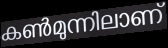
കൺമുന്നിലാണ്